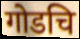
गोडचि